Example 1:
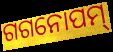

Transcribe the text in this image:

ଗଗନୋପମ୍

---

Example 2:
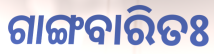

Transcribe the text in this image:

ଗାଙ୍ଗବାରିତଃ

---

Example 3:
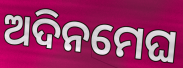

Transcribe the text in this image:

ଅଦିନମେଘ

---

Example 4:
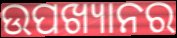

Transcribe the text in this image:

ଉପଖ୍ୟାନର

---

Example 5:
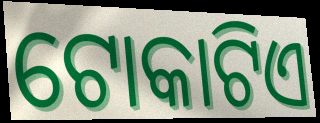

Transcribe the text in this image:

ଟୋକାଟିଏ